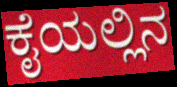
ಕೈಯಲ್ಲಿನ